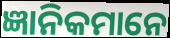
ଜ୍ଞାନିକମାନେ